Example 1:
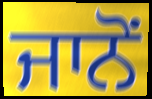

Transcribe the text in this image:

ਜਾਨੋਂ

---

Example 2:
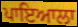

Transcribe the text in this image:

ਪਾਇਆਲਾ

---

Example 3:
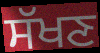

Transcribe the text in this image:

ਸੱਖਣ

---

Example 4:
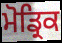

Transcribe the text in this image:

ਮੋਡ੍ਰਿਕ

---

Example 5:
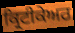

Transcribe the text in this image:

ਕ੍ਰਿਟੀਕੇਅਰ